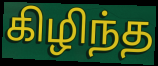
கிழிந்த